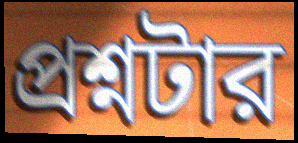
প্রশ্নটার